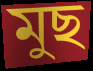
মুছ